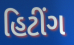
હિટીંગ